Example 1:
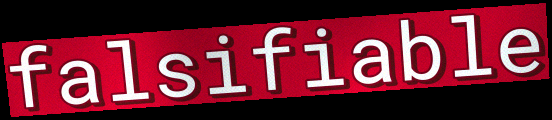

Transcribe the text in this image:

falsifiable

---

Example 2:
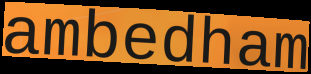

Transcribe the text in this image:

ambedham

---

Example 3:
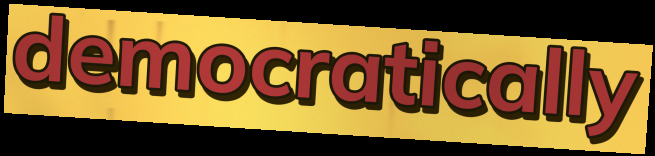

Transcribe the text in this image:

democratically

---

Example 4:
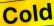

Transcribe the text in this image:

Cold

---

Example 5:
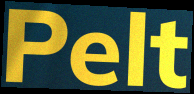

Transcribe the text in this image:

Pelt